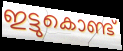
ഇട്ടുകൊണ്ട്